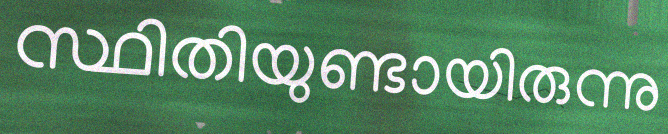
സ്ഥിതിയുണ്ടായിരുന്നു